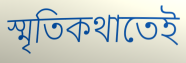
স্মৃতিকথাতেই